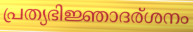
പ്രത്യഭിജ്ഞാദര്ശനം